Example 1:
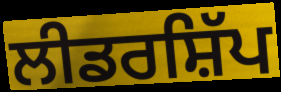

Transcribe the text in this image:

ਲੀਡਰਸ਼ਿੱਪ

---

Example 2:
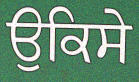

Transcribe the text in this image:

ਉਕਿਸੇ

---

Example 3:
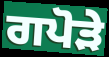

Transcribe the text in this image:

ਗਪੋੜੇ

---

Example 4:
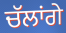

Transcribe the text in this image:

ਚੱਲਾਂਗੇ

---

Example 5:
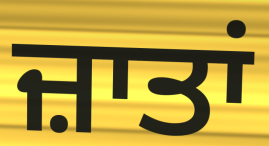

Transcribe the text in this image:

ਜ਼ਾਤਾਂ